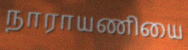
நாராயணியை